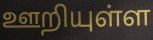
ஊறியுள்ள